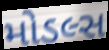
મોડલ્સ